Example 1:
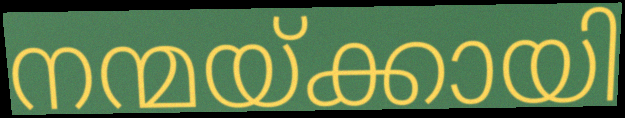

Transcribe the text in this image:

നന്മയ്ക്കായി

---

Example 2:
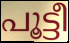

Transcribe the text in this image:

പൂട്ടീ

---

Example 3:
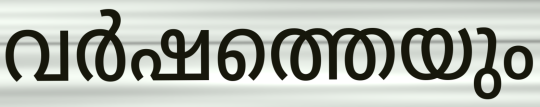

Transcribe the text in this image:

വർഷത്തെയും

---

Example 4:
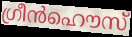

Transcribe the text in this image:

ഗ്രീൻഹൌസ്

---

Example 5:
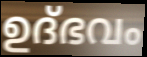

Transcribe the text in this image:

ഉദ്ഭവം